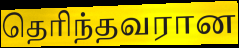
தெரிந்தவரான